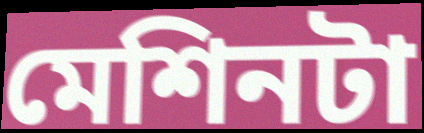
মেশিনটা